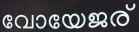
വോയേജര്